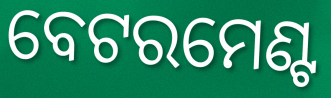
ବେଟରମେଣ୍ଟ